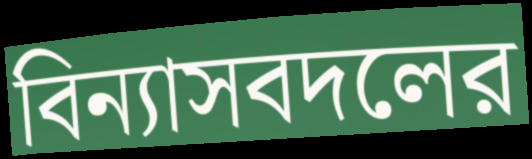
বিন্যাসবদলের